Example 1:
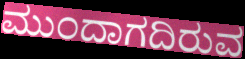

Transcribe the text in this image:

ಮುಂದಾಗದಿರುವ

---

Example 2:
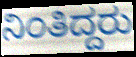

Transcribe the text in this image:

ನಿಂತಿದ್ದರು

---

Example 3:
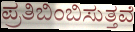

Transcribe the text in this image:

ಪ್ರತಿಬಿಂಬಿಸುತ್ತವೆ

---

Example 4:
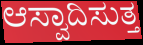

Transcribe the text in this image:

ಆಸ್ವಾದಿಸುತ್ತ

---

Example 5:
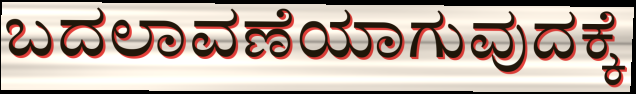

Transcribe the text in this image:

ಬದಲಾವಣೆಯಾಗುವುದಕ್ಕೆ